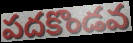
పదకొండవ